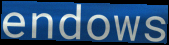
endows